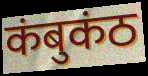
कंबुकंठ